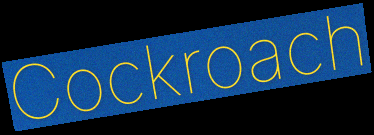
Cockroach